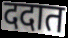
ददात